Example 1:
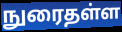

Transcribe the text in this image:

நுரைதள்ள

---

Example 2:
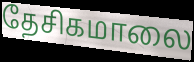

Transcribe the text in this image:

தேசிகமாலை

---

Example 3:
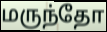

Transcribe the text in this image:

மருந்தோ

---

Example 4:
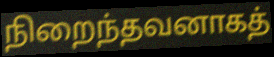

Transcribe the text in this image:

நிறைந்தவனாகத்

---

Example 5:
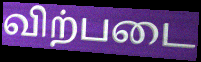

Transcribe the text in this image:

விற்படை